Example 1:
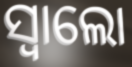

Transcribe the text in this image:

ସ୍ବାଲୋ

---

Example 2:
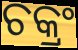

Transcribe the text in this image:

ଚକ୍ରଂ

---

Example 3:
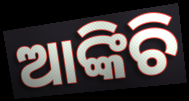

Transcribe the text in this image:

ଆଙ୍କିଚି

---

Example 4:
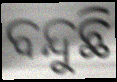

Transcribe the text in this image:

ବନ୍ଦୁଛି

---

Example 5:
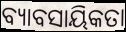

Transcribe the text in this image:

ବ୍ୟାବସାୟିକତା